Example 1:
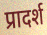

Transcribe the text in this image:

प्रादर्श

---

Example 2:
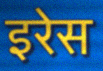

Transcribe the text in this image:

इरेस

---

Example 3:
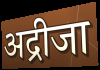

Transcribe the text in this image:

अद्रीजा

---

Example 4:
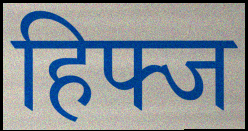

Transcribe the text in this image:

हिफ्ज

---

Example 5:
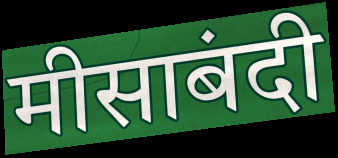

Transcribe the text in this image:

मीसाबंदी